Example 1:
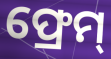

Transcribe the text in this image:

ଫ୍ରେମ୍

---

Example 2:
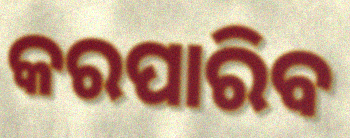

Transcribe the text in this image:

କରପାରିବ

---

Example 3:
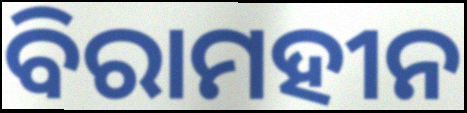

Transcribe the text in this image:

ବିରାମହୀନ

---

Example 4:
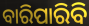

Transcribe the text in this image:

ବାରିପାରିବି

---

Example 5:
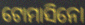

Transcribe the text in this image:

ଟୋମାସିନୋ